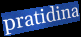
pratidina